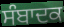
ਸੰਬਾਦਕ